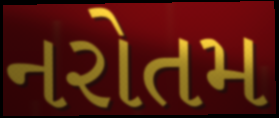
નરોતમ